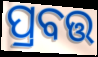
ପ୍ରବତ୍ତ